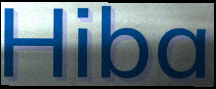
Hiba